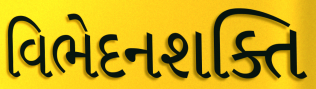
વિભેદનશક્તિ